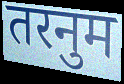
तरनुम